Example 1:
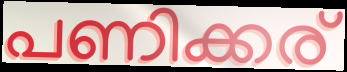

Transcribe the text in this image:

പണിക്കര്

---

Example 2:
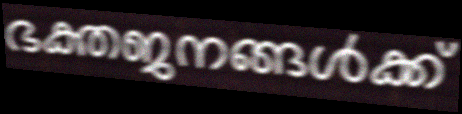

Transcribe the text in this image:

ഭക്തജനങ്ങൾക്ക്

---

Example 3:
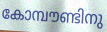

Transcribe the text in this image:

കോമ്പൗണ്ടിനു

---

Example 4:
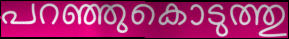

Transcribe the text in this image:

പറഞ്ഞുകൊടുത്തു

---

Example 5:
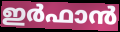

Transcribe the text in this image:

ഇർഫാൻ